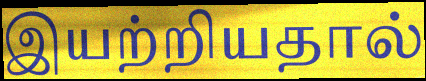
இயற்றியதால்